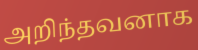
அறிந்தவனாக